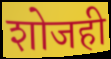
शोजही